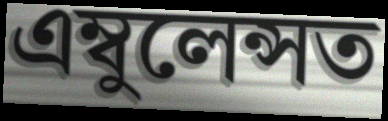
এম্বুলেন্সত